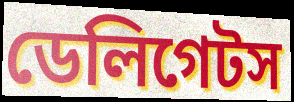
ডেলিগেটস